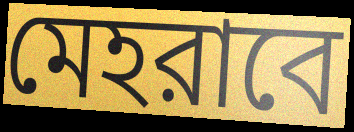
মেহরাবে